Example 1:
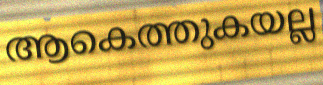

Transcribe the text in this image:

ആകെത്തുകയല്ല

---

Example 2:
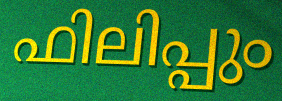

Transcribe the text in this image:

ഫിലിപ്പും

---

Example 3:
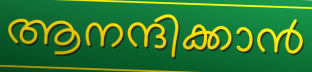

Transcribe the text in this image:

ആനന്ദിക്കാൻ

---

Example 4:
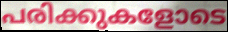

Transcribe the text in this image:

പരിക്കുകളോടെ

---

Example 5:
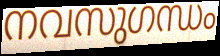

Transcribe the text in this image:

നവസുഗന്ധം